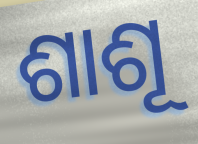
ଶାଶୂ